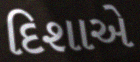
દિશાએ